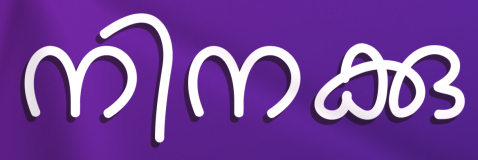
നിനക്കു